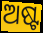
ଅଷ୍ଟ